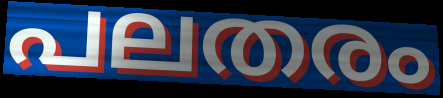
പലതരം